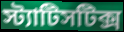
স্ট্যাটিসটিক্স